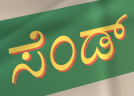
ಸೆಂಡ್